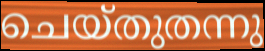
ചെയ്തുതന്നു